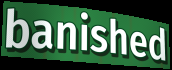
banished